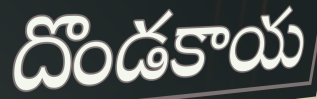
దొండకాయ